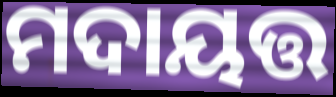
ମଦାୟତ୍ତ